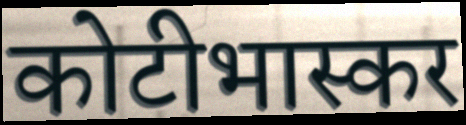
कोटीभास्कर